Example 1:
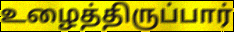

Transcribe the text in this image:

உழைத்திருப்பார்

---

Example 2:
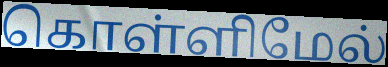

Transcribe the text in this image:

கொள்ளிமேல்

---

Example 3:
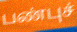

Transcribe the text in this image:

பண்புச்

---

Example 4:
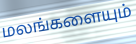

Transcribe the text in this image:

மலங்களையும்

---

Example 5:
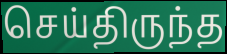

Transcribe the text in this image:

செய்திருந்த